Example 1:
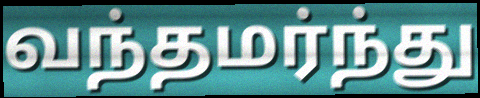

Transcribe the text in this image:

வந்தமர்ந்து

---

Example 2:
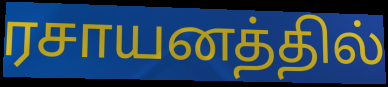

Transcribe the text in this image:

ரசாயனத்தில்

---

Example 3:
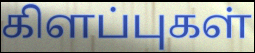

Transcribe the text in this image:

கிளப்புகள்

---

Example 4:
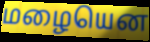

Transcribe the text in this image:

மழையென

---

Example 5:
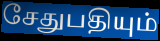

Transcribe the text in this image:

சேதுபதியும்